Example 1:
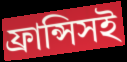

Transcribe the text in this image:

ফ্রান্সিসই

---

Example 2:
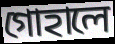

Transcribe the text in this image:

গোহালে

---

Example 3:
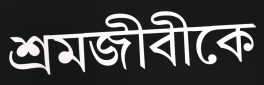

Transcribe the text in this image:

শ্রমজীবীকে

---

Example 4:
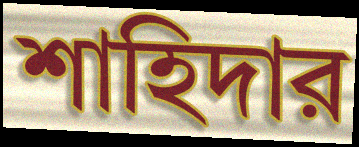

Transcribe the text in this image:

শাহিদার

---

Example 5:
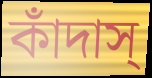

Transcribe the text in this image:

কাঁদাস্